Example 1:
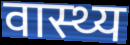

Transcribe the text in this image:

वास्थ्य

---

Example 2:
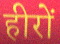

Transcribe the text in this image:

हीरों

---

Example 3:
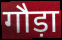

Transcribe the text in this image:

गौड़ा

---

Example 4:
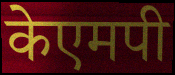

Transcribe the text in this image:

केएमपी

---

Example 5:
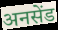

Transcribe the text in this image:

अनसेंड